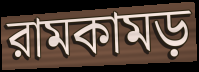
রামকামড়